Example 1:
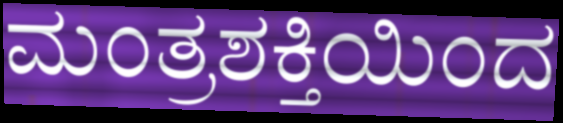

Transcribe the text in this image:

ಮಂತ್ರಶಕ್ತಿಯಿಂದ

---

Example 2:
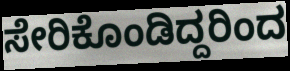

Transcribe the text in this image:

ಸೇರಿಕೊಂಡಿದ್ದರಿಂದ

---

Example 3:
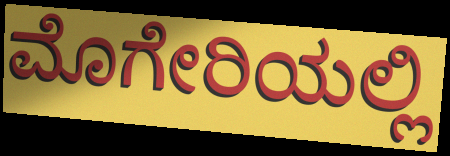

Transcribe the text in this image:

ಮೊಗೇರಿಯಲ್ಲಿ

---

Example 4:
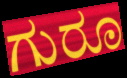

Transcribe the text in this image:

ಗುರೂ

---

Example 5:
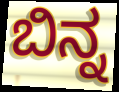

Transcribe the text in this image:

ಬಿನ್ನ